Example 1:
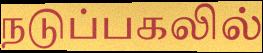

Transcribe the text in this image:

நடுப்பகலில்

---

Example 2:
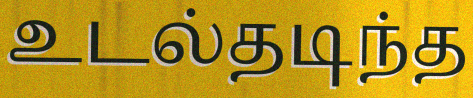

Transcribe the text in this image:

உடல்தடிந்த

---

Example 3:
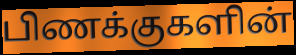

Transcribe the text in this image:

பிணக்குகளின்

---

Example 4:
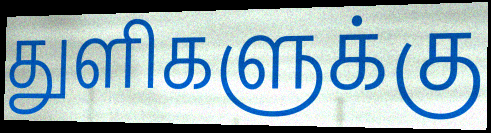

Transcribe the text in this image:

துளிகளுக்கு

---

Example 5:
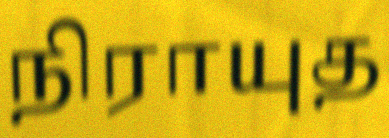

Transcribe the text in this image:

நிராயுத